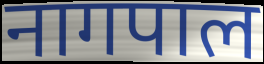
नागपाल